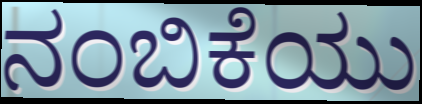
ನಂಬಿಕೆಯು